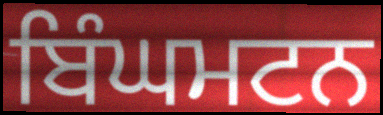
ਬਿੰਘਮਟਨ